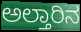
ಅಲ್ತಾರಿನ